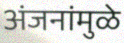
अंजनांमुळे